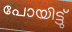
പോയിട്ടു്